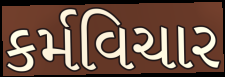
કર્મવિચાર